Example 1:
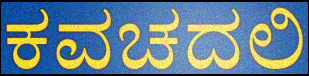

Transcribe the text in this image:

ಕವಚದಲಿ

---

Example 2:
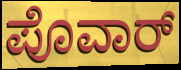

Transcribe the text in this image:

ಪೊವಾರ್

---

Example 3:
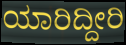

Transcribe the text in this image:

ಯಾರಿದ್ದೀರಿ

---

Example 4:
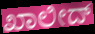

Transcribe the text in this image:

ಖಾಲೀದ್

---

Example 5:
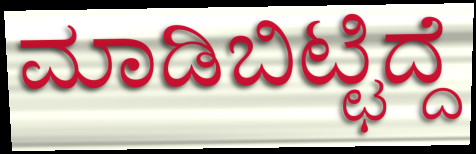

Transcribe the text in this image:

ಮಾಡಿಬಿಟ್ಟಿದ್ದೆ